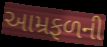
આમ્રફળની